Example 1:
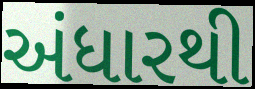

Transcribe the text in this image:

અંધારથી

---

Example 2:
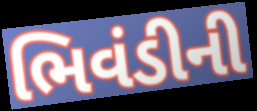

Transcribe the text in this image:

ભિવંડીની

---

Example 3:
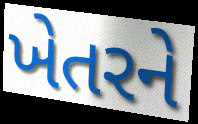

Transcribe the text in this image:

ખેતરને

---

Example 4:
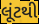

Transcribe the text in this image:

લૂંટથી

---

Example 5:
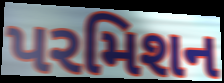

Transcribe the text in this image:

પરમિશન